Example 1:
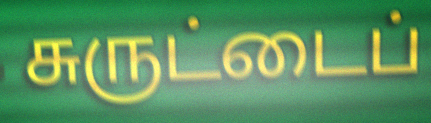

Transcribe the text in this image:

சுருட்டைப்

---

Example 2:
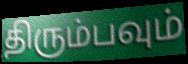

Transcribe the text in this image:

திரும்பவும்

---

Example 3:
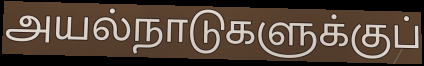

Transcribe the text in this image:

அயல்நாடுகளுக்குப்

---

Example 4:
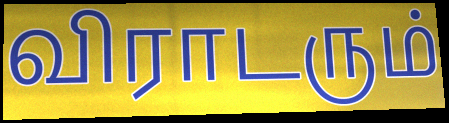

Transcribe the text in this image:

விராடரும்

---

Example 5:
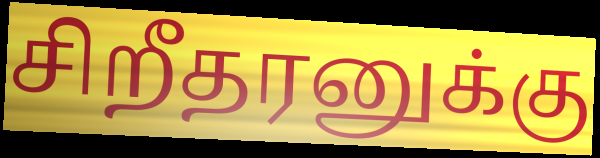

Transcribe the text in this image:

சிறீதரனுக்கு